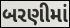
બરણીમાં